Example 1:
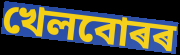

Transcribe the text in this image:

খেলবোৰৰ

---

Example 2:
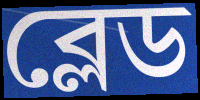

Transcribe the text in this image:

ব্লেড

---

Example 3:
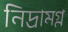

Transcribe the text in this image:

নিদ্ৰামগ্ন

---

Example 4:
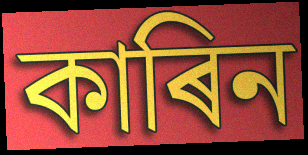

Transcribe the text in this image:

কাৰিন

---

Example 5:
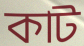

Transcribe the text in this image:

কাট